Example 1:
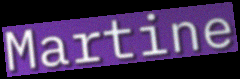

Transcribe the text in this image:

Martine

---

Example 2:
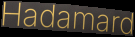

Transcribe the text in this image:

Hadamard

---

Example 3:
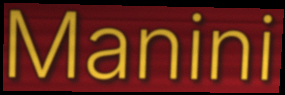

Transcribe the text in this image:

Manini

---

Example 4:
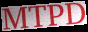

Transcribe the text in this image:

MTPD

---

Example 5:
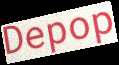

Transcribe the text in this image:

Depop